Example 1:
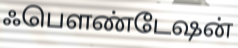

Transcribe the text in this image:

ஃபௌண்டேஷன்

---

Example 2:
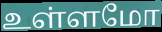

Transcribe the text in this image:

உள்ளமோ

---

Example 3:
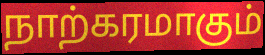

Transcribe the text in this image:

நாற்கரமாகும்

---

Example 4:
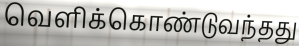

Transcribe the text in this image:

வெளிக்கொண்டுவந்தது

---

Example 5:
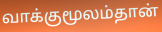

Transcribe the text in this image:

வாக்குமூலம்தான்